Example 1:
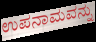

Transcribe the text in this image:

ಉಪನಾಮವನ್ನು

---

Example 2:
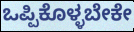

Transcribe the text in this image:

ಒಪ್ಪಿಕೊಳ್ಳಬೇಕೇ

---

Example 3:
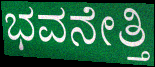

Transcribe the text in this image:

ಭವನೇತ್ತಿ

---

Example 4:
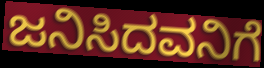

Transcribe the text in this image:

ಜನಿಸಿದವನಿಗೆ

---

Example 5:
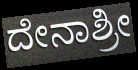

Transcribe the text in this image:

ದೇನಾಶ್ರೀ